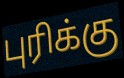
புரிக்கு